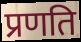
प्रणति